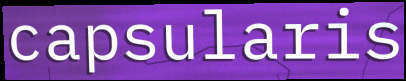
capsularis